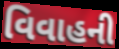
વિવાહની